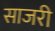
साजरी